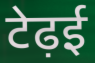
टेढ़ई